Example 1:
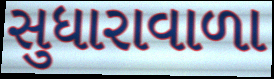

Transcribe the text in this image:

સુધારાવાળા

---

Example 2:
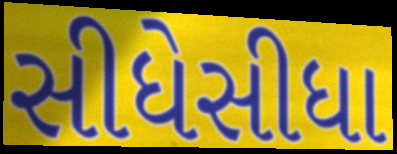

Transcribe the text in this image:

સીધેસીધા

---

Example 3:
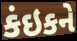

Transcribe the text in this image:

કંઇકને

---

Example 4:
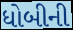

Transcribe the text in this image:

ધોબીની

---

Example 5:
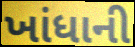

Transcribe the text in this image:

ખાંધાની